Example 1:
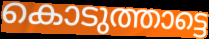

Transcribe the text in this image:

കൊടുത്താട്ടെ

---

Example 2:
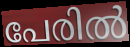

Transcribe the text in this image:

പേരിൽ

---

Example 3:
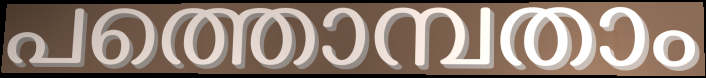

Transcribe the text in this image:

പത്തൊമ്പതാം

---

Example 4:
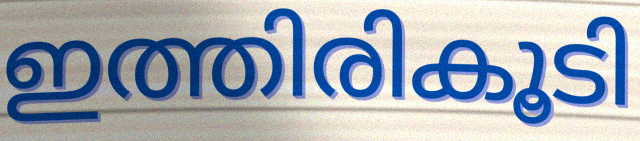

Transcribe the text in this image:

ഇത്തിരികൂടി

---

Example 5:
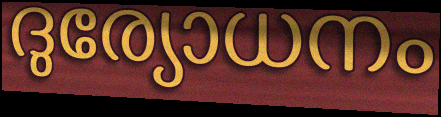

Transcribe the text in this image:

ദുര്യോധനം